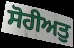
ਸੋਹੀਅਤੁ